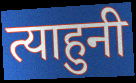
त्याहुनी